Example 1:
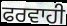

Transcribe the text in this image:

ਫਰਵਾਹੀ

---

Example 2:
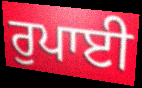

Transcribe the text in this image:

ਰੁਪਾਈ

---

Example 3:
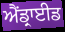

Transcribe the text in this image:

ਐਂਡ੍ਰਾਈਡ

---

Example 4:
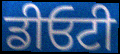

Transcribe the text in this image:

ਡੀਓਟੀ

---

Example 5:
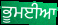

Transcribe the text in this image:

ਭੂਮਈਆ